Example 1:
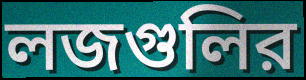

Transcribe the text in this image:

লজগুলির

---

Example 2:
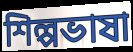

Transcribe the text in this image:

শিল্পভাষা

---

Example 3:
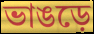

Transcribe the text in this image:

ভাঙড়ে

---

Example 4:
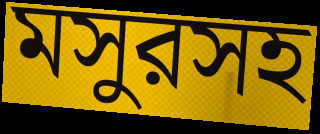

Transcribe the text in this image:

মসুরসহ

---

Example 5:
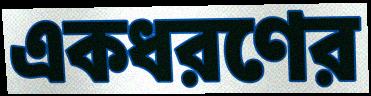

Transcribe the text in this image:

একধরণের